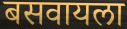
बसवायला